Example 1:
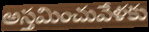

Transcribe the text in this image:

అస్తమించువేళకు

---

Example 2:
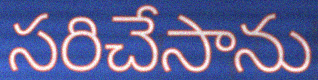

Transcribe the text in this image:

సరిచేసాను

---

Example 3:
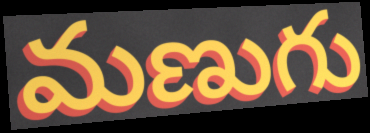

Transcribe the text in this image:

మణుగు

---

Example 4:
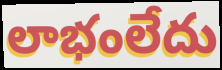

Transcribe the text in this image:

లాభంలేదు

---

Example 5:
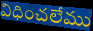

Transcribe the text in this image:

విధించలేము